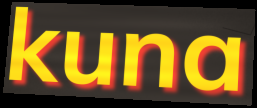
kuna